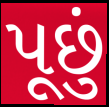
પૂછું